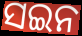
ସଇନ